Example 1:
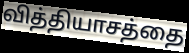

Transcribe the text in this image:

வித்தியாசத்தை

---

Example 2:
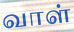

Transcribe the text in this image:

வாள்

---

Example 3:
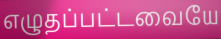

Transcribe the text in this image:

எழுதப்பட்டவையே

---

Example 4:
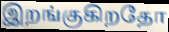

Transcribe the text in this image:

இறங்குகிறதோ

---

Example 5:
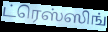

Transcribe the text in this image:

ட்ரெஸ்ஸிங்